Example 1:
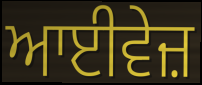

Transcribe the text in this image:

ਆਈਵੇਜ਼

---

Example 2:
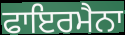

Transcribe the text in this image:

ਫਾਇਰਮੈਨਾ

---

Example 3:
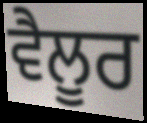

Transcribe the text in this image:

ਵੈਲੂਰ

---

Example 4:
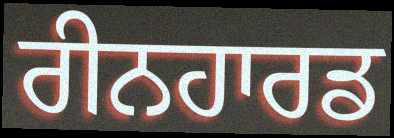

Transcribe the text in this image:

ਰੀਨਹਾਰਡ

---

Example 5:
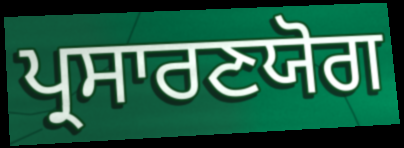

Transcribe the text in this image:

ਪ੍ਰਸਾਰਣਯੋਗ